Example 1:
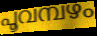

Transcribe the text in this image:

പൂവമ്പഴം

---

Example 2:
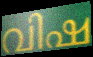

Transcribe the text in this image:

വിഷ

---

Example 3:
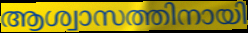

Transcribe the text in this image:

ആശ്വാസത്തിനായി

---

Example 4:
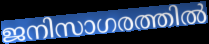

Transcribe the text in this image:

ജനിസാഗരത്തിൽ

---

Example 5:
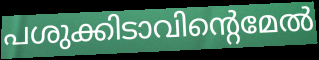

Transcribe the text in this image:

പശുക്കിടാവിന്റെമേൽ